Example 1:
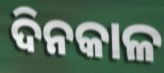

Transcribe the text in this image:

ଦିନକାଳ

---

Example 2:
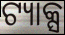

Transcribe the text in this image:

ଟ୍ୟାକ୍ସ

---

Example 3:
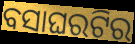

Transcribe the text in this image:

ବସାଘରଟିର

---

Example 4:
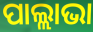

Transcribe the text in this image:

ପାଲ୍ଲାଭା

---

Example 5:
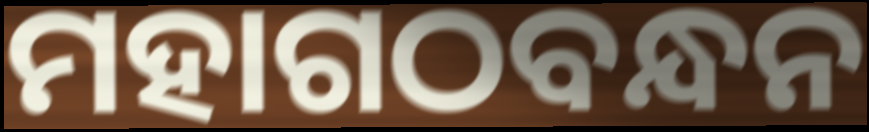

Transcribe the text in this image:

ମହାଗଠବନ୍ଧନ